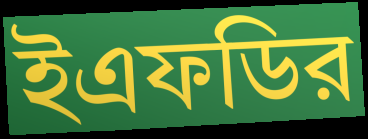
ইএফডির